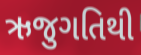
ઋજુગતિથી